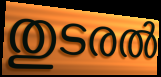
തുടരൽ